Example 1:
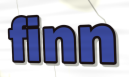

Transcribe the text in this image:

finn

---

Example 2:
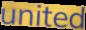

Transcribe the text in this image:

united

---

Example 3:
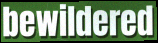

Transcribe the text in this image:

bewildered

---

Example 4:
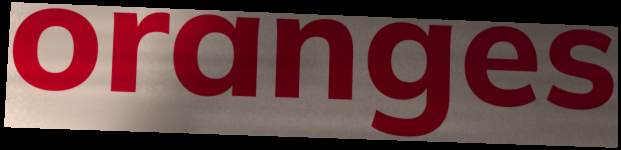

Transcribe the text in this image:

oranges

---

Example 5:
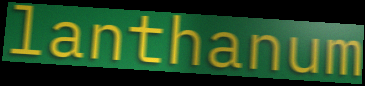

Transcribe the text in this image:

lanthanum